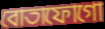
বোতাফোগো